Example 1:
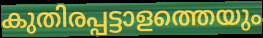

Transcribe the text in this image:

കുതിരപ്പട്ടാളത്തെയും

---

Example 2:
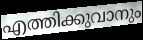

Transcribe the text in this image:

എത്തിക്കുവാനും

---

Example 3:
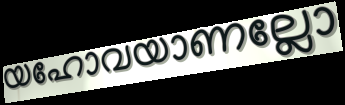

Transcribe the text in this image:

യഹോവയാണല്ലോ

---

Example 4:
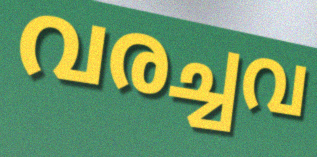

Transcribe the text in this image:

വരച്ചവ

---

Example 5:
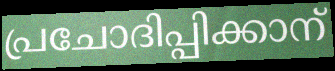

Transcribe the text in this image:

പ്രചോദിപ്പിക്കാന്